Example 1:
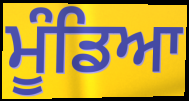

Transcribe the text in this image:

ਮੂੰਡਿਆ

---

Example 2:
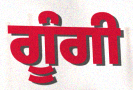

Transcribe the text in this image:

ਗੂੰਗੀ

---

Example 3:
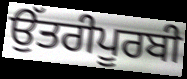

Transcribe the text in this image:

ਉੱਤਰੀਪੂਰਬੀ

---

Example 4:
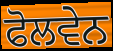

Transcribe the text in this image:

ਫੋਲਵੇਨ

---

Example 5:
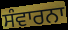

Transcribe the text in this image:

ਸੰਵਾਰਨਾ